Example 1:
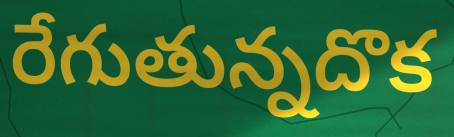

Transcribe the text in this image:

రేగుతున్నదొక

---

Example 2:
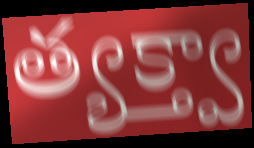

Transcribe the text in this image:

త్యక్త్వా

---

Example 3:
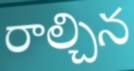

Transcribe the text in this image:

రాల్చిన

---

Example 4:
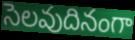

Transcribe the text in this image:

సెలవుదినంగా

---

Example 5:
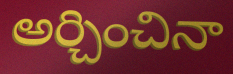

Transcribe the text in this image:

అర్చించినా